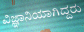
ವಿಜ್ಞಾನಿಯಾಗಿದ್ದರು